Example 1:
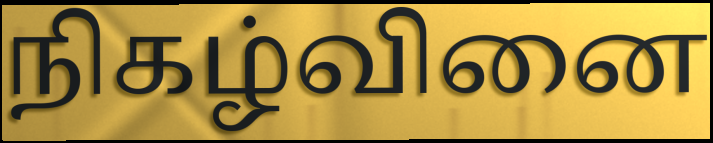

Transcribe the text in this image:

நிகழ்வினை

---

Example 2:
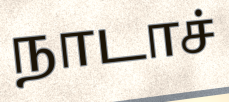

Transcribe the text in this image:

நாடாச்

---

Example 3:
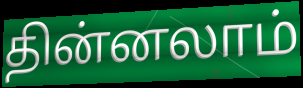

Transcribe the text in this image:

தின்னலாம்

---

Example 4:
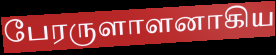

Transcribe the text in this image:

பேரருளாளனாகிய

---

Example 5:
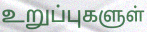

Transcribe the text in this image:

உறுப்புகளுள்